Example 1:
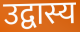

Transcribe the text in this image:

उद्वास्य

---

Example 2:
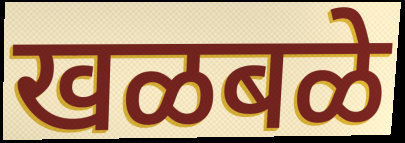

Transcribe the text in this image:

खळबळे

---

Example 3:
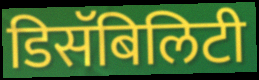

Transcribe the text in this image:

डिसॅबिलिटी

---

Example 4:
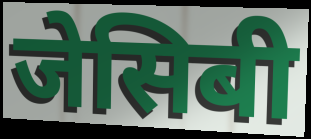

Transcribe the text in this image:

जेसिबी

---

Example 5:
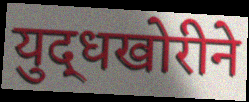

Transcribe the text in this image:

युद्धखोरीने